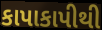
કાપાકાપીથી